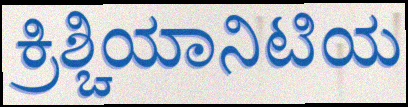
ಕ್ರಿಶ್ಚಿಯಾನಿಟಿಯ